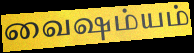
வைஷம்யம்